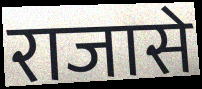
राजासे